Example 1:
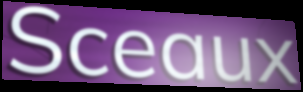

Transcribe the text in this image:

Sceaux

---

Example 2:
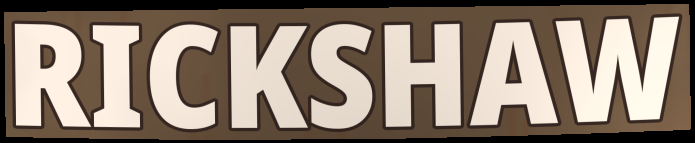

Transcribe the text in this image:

RICKSHAW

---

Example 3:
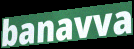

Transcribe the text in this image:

banavva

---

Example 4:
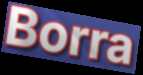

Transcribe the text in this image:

Borra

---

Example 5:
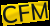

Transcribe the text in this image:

CFM